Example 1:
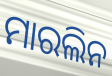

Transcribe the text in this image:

ମାରଲିନ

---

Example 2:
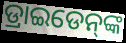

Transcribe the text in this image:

ଡ୍ରାଇଡେନ୍‌ଙ୍କ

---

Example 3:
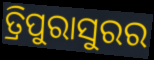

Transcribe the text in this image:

ତ୍ରିପୁରାସୁରର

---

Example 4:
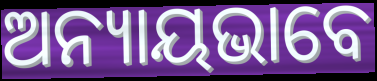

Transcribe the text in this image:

ଅନ୍ୟାୟଭାବେ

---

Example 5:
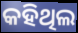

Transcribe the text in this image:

କହିଥିଲ